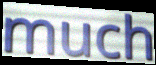
much